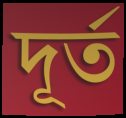
দূর্ত